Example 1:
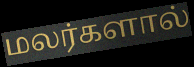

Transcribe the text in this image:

மலர்களால்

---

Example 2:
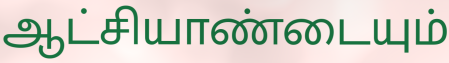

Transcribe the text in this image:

ஆட்சியாண்டையும்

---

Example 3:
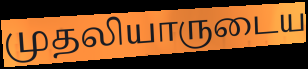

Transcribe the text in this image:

முதலியாருடைய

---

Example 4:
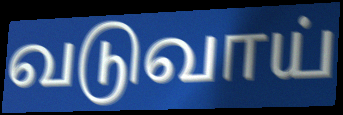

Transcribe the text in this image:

வடுவாய்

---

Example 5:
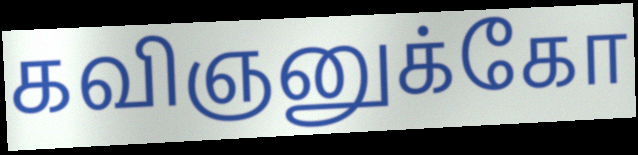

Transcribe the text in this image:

கவிஞனுக்கோ